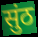
सुंठ